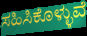
ಸಹಿಸಿಕೊಳ್ಳುವೆ